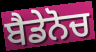
ਬੈਡੇਨੋਚ